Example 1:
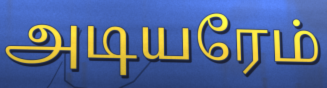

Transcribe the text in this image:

அடியரேம்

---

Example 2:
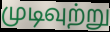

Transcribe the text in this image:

முடிவுற்று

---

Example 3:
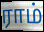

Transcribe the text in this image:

ராம்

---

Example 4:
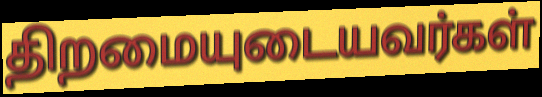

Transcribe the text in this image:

திறமையுடையவர்கள்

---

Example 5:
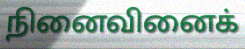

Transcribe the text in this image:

நினைவினைக்